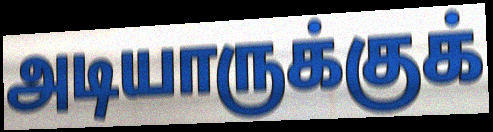
அடியாருக்குக்